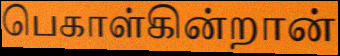
பெகாள்கின்றான்